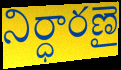
నిర్ధారణై